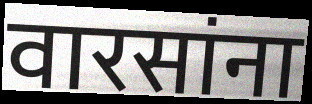
वारसांना